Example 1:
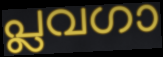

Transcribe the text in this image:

പ്ലവഗാ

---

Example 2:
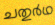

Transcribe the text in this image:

ചതുർഥ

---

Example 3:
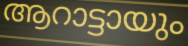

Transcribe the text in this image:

ആറാട്ടായും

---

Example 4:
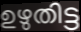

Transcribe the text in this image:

ഉഴുതിട്ട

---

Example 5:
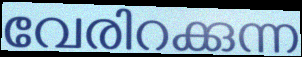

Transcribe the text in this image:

വേരിറക്കുന്ന